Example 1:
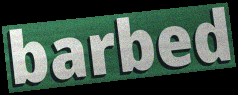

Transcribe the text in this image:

barbed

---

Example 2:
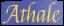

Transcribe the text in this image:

Athale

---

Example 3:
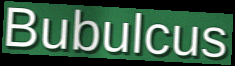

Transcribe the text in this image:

Bubulcus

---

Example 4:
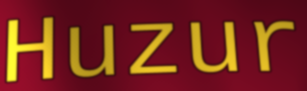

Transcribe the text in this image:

Huzur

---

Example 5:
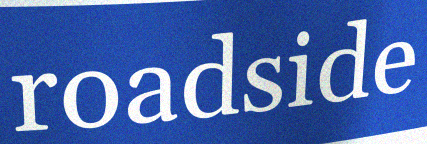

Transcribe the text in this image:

roadside